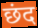
छंद